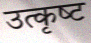
उत्‍कृष्‍ट